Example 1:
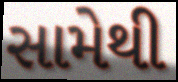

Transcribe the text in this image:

સામેથી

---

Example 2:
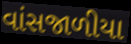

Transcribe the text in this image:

વાંસજાળીયા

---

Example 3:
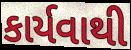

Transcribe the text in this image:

કાર્યવાથી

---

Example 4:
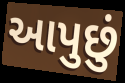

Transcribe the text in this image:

આપુછું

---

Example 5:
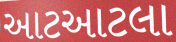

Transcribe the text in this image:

આટઆટલા